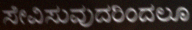
ಸೇವಿಸುವುದರಿಂದಲೂ